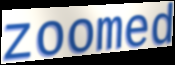
zoomed